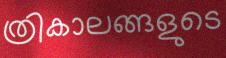
ത്രികാലങ്ങളുടെ